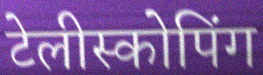
टेलीस्कोपिंग